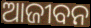
ଆଜୀବନ